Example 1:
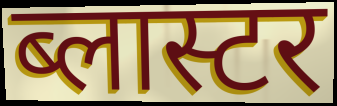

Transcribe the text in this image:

ब्लास्टर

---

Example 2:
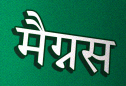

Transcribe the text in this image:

मैग्नस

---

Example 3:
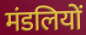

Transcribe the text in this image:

मंडलियों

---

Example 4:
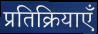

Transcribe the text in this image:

प्रतिक्रियाएँ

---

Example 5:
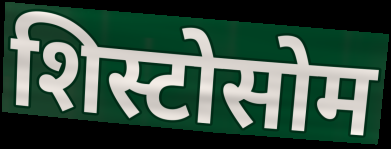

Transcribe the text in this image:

शिस्टोसोम